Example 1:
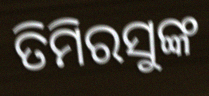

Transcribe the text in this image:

ତିମିରସୁଙ୍କ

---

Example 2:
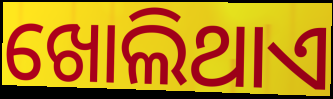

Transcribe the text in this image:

ଖୋଲିଥାଏ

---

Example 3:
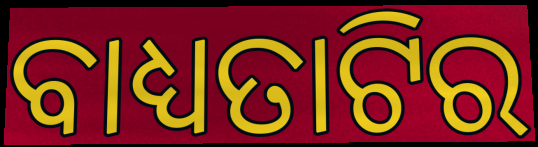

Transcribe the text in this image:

ବାଧ୍ୟତାଟିର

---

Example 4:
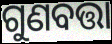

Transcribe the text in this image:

ଗୁଣବତ୍ତା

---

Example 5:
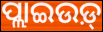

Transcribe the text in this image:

ପ୍ଲାଇଉଡ଼୍